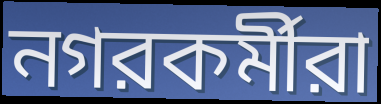
নগরকর্মীরা